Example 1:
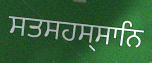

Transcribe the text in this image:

ਸਤਸਹਸ੍ਸਾਨਿ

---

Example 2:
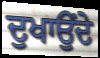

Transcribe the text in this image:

ਦੁਖਾਉਂਦੇ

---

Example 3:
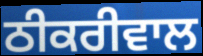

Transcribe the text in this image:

ਠੀਕਰੀਵਾਲ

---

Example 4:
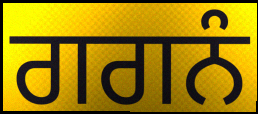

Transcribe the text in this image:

ਗਗਨੰ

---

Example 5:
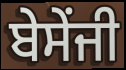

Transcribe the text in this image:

ਬੇਸੇਂਜੀ